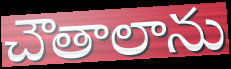
చౌతాలాను